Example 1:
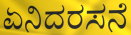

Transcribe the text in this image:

ಏನಿದರಸನೆ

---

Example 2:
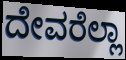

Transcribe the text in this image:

ದೇವರೆಲ್ಲಾ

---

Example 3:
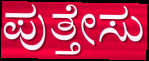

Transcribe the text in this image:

ಪುತ್ತೇಸು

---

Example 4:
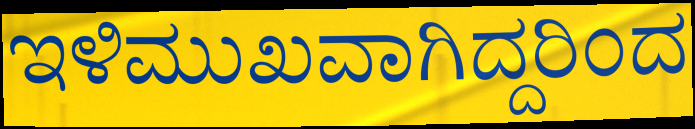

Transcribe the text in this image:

ಇಳಿಮುಖವಾಗಿದ್ದರಿಂದ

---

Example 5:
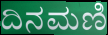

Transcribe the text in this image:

ದಿನಮಣಿ